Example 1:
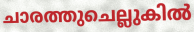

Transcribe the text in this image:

ചാരത്തുചെല്ലുകിൽ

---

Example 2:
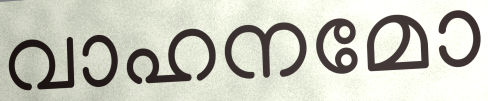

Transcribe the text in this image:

വാഹനമോ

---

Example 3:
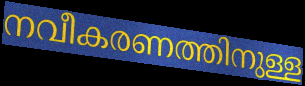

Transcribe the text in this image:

നവീകരണത്തിനുള്ള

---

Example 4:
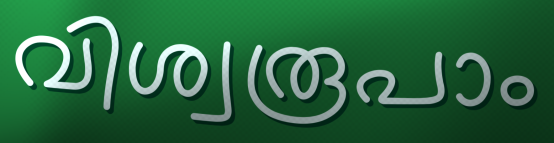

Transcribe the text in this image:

വിശ്വരൂപാം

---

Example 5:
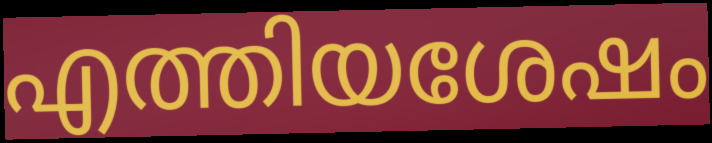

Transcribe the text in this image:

എത്തിയശേഷം